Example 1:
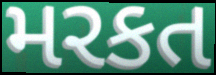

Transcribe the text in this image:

મરકત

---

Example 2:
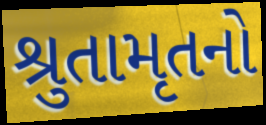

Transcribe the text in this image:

શ્રુતામૃતનો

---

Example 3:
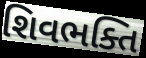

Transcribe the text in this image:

શિવભક્તિ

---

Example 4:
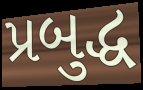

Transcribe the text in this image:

પ્રબુદ્ધ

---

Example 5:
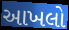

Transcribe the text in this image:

આખલો